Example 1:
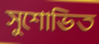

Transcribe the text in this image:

সুশোভিত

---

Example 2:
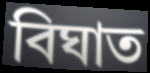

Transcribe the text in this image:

বিঘাত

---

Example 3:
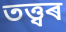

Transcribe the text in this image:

তত্ত্বৰ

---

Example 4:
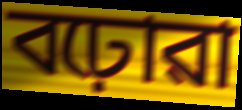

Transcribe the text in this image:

বঢ়োৱা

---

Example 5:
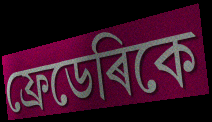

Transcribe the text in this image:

ফ্ৰেডেৰিকে